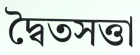
দ্বৈতসত্তা